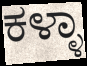
ಕಳ್ಳಾ